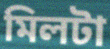
মিলটা